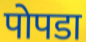
पोपडा